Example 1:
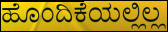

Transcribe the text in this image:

ಹೊಂದಿಕೆಯಲ್ಲಿಲ್ಲ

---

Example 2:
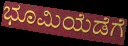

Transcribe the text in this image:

ಭೂಮಿಯೆಡೆಗೆ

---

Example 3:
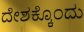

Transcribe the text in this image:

ದೇಶಕ್ಕೊಂದು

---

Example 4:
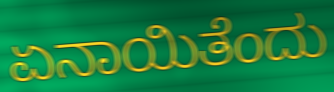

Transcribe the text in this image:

ಏನಾಯಿತೆಂದು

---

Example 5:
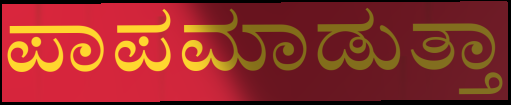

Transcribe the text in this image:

ಪಾಪಮಾಡುತ್ತಾ